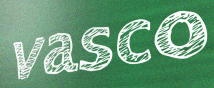
vasco